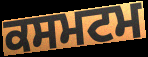
ਕਸਮਟਮ